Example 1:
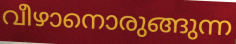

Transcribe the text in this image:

വീഴാനൊരുങ്ങുന്ന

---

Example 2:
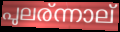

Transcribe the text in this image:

പുലര്ന്നാല്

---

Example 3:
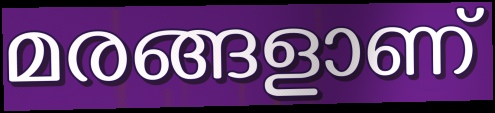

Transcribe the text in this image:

മരങ്ങളാണ്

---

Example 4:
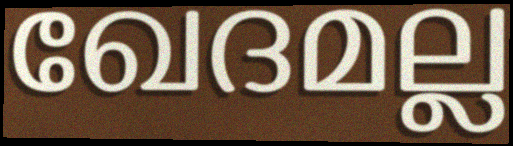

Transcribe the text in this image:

ഖേദമല്ല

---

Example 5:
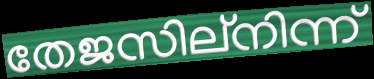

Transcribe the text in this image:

തേജസില്നിന്ന്